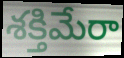
శక్తిమేరా